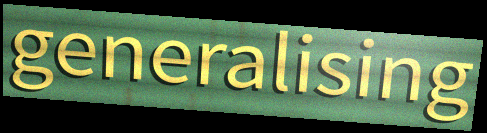
generalising